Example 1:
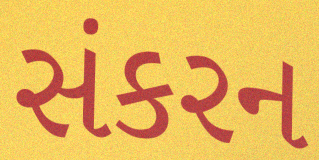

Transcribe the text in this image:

સંકરન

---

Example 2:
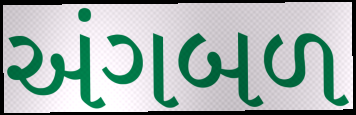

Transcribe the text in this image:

અંગબળ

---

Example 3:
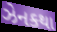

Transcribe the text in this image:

ઝેનકથા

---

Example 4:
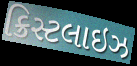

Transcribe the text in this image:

ક્રિસ્ટલાઇઝ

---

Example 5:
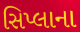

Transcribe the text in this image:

સિપ્લાના